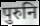
पुरुनि